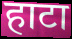
हाटा